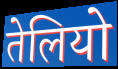
तेलियो